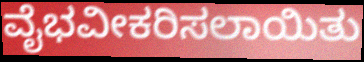
ವೈಭವೀಕರಿಸಲಾಯಿತು